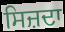
ਸਿਜ਼ਦਾ